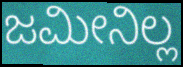
ಜಮೀನಿಲ್ಲ